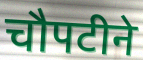
चौपटीने